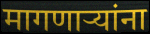
मागणार्‍यांना